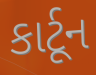
કાર્ટૂન